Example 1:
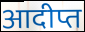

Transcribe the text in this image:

आदीप्त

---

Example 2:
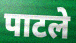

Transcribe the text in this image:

पाटले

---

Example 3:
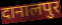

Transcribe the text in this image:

दानालपुर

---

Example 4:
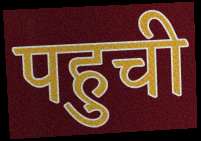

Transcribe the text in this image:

पहुची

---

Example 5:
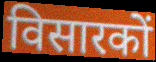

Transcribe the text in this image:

विसारकों